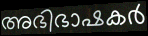
അഭിഭാഷകർ